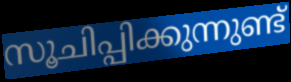
സൂചിപ്പിക്കുന്നുണ്ട്